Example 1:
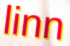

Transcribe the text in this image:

linn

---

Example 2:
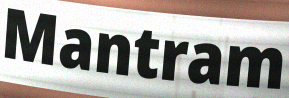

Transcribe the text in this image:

Mantram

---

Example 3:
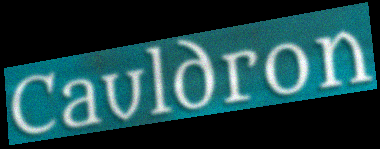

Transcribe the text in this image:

Cauldron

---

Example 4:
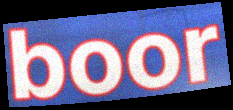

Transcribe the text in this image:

boor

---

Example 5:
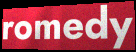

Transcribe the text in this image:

romedy